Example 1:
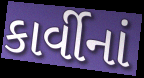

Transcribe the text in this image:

કાર્વીનાં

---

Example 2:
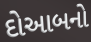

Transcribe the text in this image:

દોઆબનો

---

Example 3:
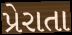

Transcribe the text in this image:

પ્રેરાતા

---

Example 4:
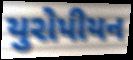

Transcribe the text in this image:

યુરોપીયન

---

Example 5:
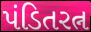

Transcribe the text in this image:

પંડિતરત્ન